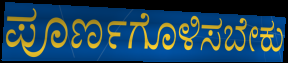
ಪೂರ್ಣಗೊಳಿಸಬೇಕು